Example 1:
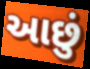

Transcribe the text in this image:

આછું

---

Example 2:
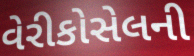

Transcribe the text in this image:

વેરીકોસેલની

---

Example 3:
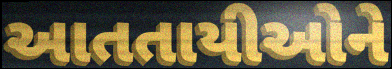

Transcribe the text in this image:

આતતાયીઓને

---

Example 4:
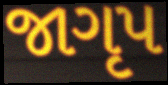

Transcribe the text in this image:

જાગૃપ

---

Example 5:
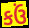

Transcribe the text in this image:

કઉં